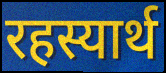
रहस्यार्थ